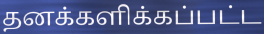
தனக்களிக்கப்பட்ட